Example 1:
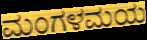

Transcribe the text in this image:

ಮಂಗಳಮಯ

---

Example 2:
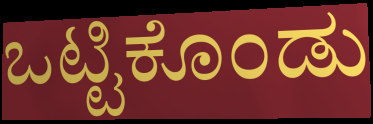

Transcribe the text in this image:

ಒಟ್ಟಿಕೊಂಡು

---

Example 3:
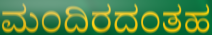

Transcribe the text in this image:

ಮಂದಿರದಂತಹ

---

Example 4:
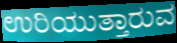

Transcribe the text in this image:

ಉರಿಯುತ್ತಾರುವ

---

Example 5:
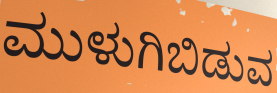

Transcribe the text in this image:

ಮುಳುಗಿಬಿಡುವ